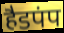
हैडपंप